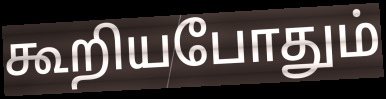
கூறியபோதும்